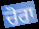
ਚੋਰਾ